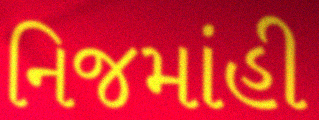
નિજમાંહી